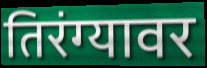
तिरंग्यावर